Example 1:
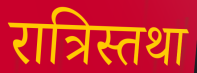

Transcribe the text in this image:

रात्रिस्तथा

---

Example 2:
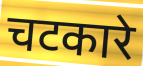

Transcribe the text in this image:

चटकारे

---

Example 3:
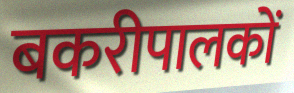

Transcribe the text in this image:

बकरीपालकों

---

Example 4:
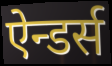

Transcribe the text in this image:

ऐन्डर्स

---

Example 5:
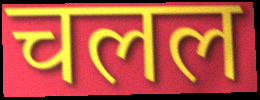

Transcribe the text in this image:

चलल